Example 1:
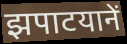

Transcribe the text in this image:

झपाटयानें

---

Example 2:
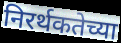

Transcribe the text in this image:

निरर्थकतेच्या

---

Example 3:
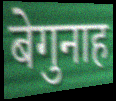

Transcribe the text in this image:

बेगुनाह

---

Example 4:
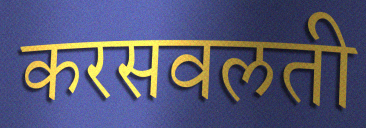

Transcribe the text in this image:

करसवलती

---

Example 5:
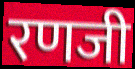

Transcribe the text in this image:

रणजी